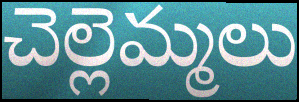
చెల్లెమ్మలు